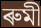
ৰুমী